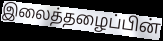
இலைத்தழைப்பின்